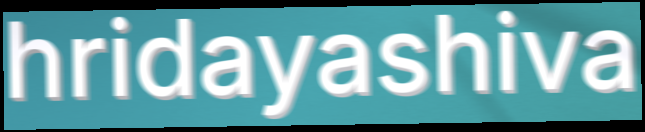
hridayashiva